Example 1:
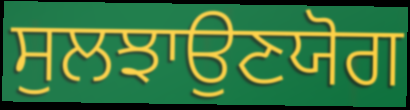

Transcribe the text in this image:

ਸੁਲਝਾਉਣਯੋਗ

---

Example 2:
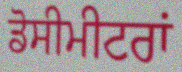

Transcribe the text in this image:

ਡੋਸੀਮੀਟਰਾਂ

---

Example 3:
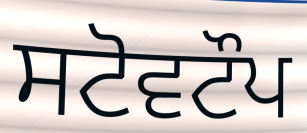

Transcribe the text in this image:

ਸਟੋਵਟੌਪ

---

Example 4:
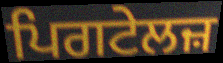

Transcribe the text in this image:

ਪਿਗਟੇਲਜ਼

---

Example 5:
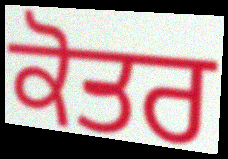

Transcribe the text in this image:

ਕੋਤਰ